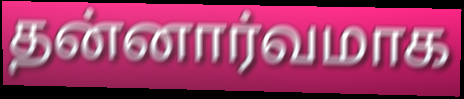
தன்னார்வமாக